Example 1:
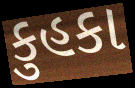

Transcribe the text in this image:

કુહકા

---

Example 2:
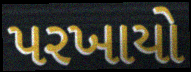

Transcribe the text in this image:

પરખાયો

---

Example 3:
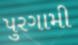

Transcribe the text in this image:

પુરગામી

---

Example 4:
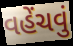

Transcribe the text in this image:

વહેંચવું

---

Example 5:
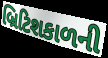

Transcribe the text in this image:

બ્રિટિશકાળની